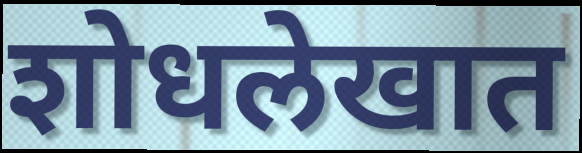
शोधलेखात